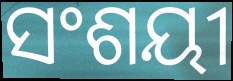
ସଂଶୟୀ